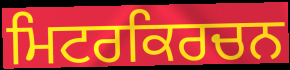
ਮਿਟਰਕਿਰਚਨ